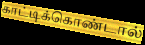
காட்டிக்கொண்டால்